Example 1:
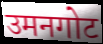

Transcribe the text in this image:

उमनगोट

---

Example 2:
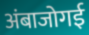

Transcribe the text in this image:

अंबाजोगई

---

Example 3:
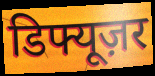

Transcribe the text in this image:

डिफ्यूज़र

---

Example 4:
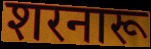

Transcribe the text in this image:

शरनारू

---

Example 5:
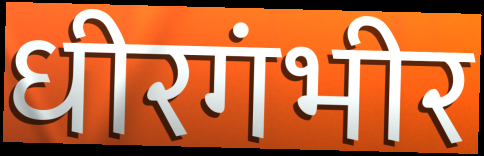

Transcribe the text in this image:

धीरगंभीर